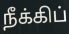
நீக்கிப்